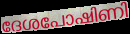
ദേശപോഷിണി